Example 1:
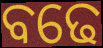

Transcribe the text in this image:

ବଢେ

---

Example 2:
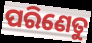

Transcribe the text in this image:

ପରିଣେତୁ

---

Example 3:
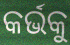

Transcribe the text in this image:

କର୍ଭକୁ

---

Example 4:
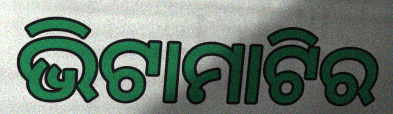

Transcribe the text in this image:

ଭିଟାମାଟିର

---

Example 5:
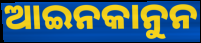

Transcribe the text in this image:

ଆଇନକାନୁନ